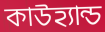
কাউহ্যান্ড